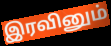
இரவினும்